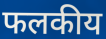
फलकीय